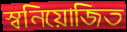
স্বনিয়োজিত